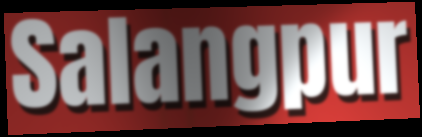
Salangpur